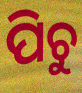
ପିଚୁ